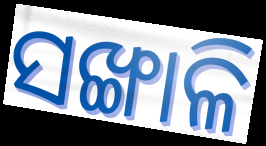
ସଙ୍ଖାଳି